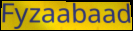
Fyzaabaad